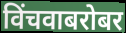
विंचवाबरोबर